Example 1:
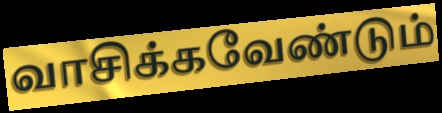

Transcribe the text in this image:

வாசிக்கவேண்டும்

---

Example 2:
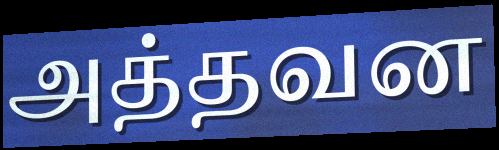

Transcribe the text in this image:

அத்தவன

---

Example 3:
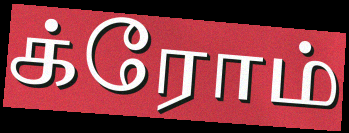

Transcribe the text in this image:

க்ரோம்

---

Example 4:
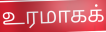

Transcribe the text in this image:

உரமாகக்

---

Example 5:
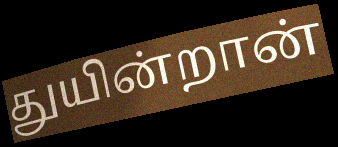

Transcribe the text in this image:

துயின்றான்